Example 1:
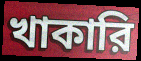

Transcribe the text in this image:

খাকারি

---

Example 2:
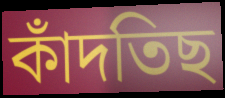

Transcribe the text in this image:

কাঁদতিছ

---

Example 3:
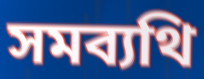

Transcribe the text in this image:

সমব্যথি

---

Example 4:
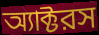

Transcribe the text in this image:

অ্যাক্টরস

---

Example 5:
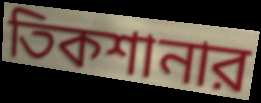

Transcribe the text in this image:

তিকশানার